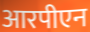
आरपीएन